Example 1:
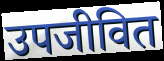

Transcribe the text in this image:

उपजीवित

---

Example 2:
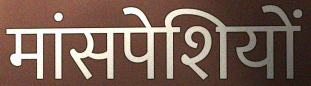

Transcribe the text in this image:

मांसपेशियों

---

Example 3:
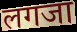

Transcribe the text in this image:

लगजा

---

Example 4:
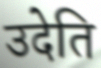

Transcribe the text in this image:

उदेति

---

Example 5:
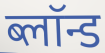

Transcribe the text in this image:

ब्लॉन्ड